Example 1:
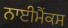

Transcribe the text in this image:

ਨਾਈਮੈਂਕਸ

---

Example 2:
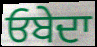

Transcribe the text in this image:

ਓਬੇਦਾ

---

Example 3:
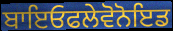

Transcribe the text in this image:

ਬਾਇਓਫਲੇਵੋਨੋਇਡ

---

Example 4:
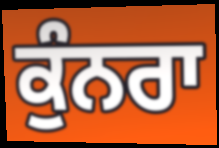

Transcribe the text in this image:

ਕੁੰਨਰਾ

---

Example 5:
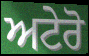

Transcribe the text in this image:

ਅਟੇਰੋ